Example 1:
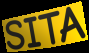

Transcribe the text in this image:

SITA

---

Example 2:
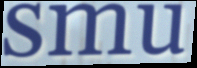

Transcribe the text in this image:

smu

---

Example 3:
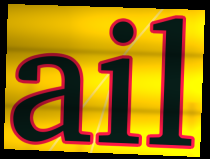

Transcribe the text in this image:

ail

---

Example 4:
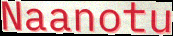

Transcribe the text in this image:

Naanotu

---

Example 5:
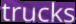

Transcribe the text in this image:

trucks